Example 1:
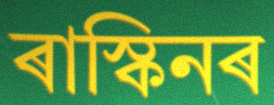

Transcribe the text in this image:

ৰাস্কিনৰ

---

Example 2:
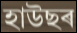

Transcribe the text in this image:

হাউছৰ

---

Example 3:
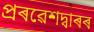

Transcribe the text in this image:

প্ৰৰৱেশদ্বাৰৰ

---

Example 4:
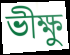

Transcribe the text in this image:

ভীক্ষু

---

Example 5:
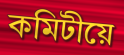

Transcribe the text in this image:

কমিটীয়ে